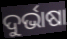
ଦୁର୍ଭାଷା